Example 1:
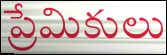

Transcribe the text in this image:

ప్రేమికులు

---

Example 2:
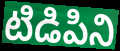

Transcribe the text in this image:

టిడిపిని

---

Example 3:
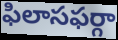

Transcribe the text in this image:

ఫిలాసఫర్గా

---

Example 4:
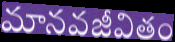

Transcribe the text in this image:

మానవజీవితం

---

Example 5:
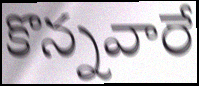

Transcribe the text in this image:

కొన్నవారే